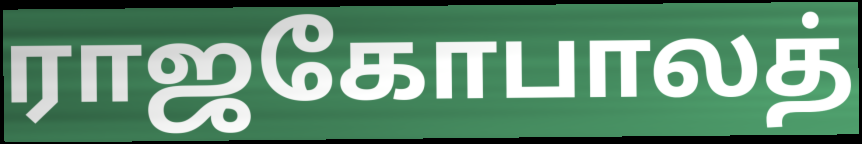
ராஜகோபாலத்